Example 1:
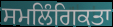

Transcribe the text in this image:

ਸਮਲਿੰਗਿਕਤਾ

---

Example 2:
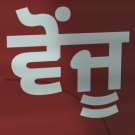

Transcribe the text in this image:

ਵੋਂਜੂ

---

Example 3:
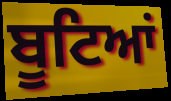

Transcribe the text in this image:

ਬੂਟਿਆਂ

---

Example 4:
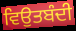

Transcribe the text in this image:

ਵਿਉਤਬੰਦੀ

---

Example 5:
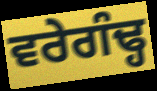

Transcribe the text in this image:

ਵਰੇਗੰਢ੍ਹ